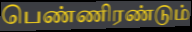
பெண்ணிரண்டும்